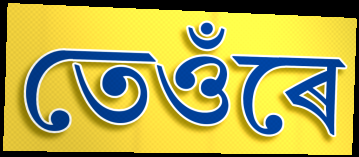
তেওঁৰে